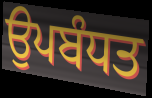
ਉਪਬੰਧਤ